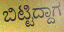
ಬಿಟ್ಟಿದ್ದಾಗ